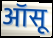
ऑसू